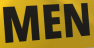
MEN